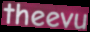
theevu